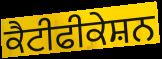
ਕੈਟੀਫੀਕੇਸ਼ਨ